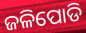
ଜଳିପୋଡି